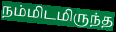
நம்மிடமிருந்த